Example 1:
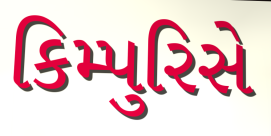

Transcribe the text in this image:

કિમ્પુરિસે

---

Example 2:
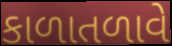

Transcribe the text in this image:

કાળાતળાવે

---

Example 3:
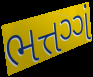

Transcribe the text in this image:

ભત્તગ્ગં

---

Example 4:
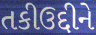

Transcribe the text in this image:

તકીઉદ્દીને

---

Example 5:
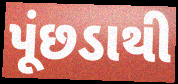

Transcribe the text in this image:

પૂંછડાથી